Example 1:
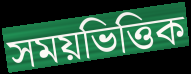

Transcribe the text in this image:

সময়ভিত্তিক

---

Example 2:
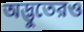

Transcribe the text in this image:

অদ্ভুতেরও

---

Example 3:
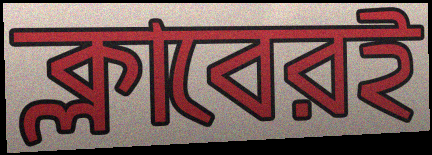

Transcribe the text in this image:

ক্লাবেরই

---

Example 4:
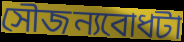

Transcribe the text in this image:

সৌজন্যবোধটা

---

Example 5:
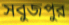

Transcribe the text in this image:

সবুজপুর